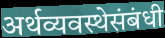
अर्थव्यवस्थेसंबंधी